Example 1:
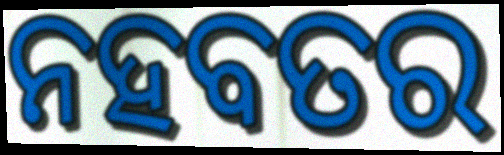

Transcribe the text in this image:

ନହବତର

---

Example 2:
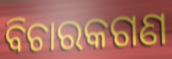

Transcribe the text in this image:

ବିଚାରକଗଣ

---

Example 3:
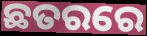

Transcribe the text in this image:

ଛତରରେ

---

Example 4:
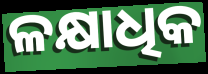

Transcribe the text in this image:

ଳକ୍ଷାଧିକ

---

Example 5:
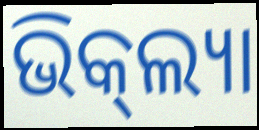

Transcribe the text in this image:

ଭିକ୍‌ଲ୍ୟା